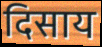
दिसाय